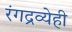
रंगद्रव्येही